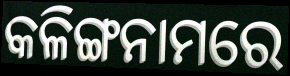
କଳିଙ୍ଗନାମରେ